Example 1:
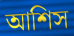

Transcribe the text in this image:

আশিস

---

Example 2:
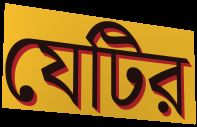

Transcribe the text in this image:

যেটির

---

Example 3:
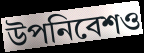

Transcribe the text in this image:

উপনিবেশও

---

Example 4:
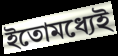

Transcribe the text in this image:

ইতোমধ্যেই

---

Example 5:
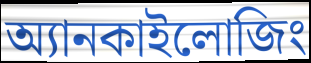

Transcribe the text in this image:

অ্যানকাইলোজিং